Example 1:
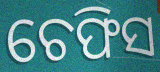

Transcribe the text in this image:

ଚେଫିସ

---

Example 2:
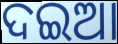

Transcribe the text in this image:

ଦଇଆ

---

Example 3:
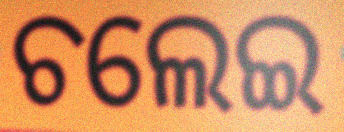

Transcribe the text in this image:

ଚଲେଇ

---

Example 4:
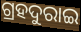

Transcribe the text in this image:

ଗ୍ରହଦୁରାଇ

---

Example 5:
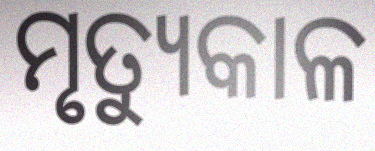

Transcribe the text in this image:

ମୃତ୍ୟୁକାଳ